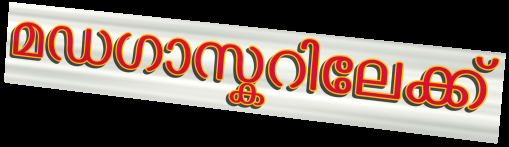
മഡഗാസ്കറിലേക്ക്